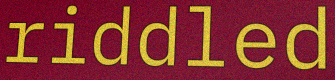
riddled